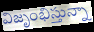
విజృంభిస్తున్నా